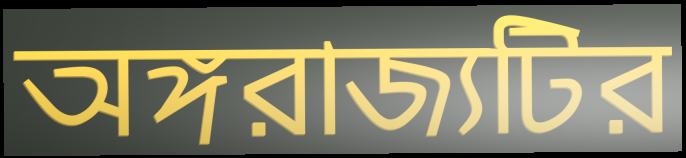
অঙ্গরাজ্যটির